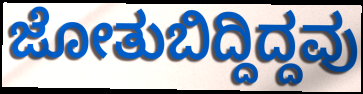
ಜೋತುಬಿದ್ದಿದ್ದವು